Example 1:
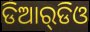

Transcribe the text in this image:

ଡିଆର୍‌ଡିଓ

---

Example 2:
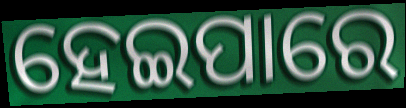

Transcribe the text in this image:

ହେଇପାରେ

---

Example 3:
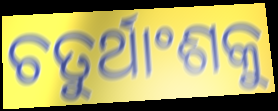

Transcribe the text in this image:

ଚତୁର୍ଥାଂଶକୁ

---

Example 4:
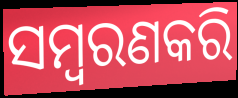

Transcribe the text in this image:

ସମ୍ବରଣକରି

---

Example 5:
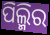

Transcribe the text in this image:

ପିଲ୍ମିର